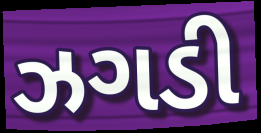
ઝગડી